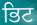
ਭਿਟ